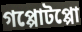
গপ্পোটপ্পো